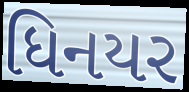
ધિનયર